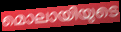
മൊലായിയുടെ